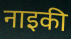
नाइकी